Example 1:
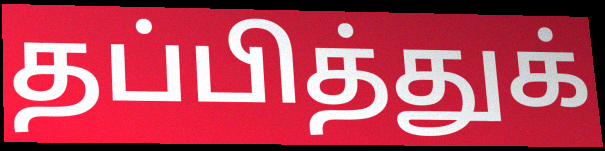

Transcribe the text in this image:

தப்பித்துக்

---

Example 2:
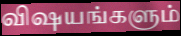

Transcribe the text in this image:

விஷயங்களும்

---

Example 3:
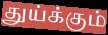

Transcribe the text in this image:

துய்க்கும்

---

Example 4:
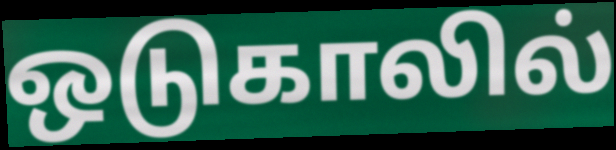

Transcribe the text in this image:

ஒடுகாலில்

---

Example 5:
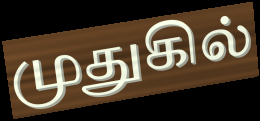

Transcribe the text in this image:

முதுகில்